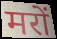
मरों